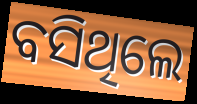
ବସିଥିଲେ